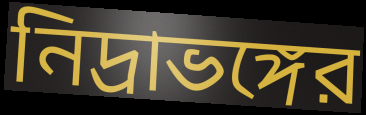
নিদ্রাভঙ্গের